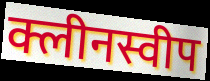
क्लीनस्वीप